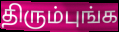
திரும்புங்க